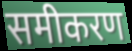
समीकरण